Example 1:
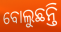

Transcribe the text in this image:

ବୋଲୁଛନ୍ତି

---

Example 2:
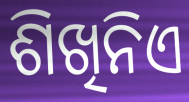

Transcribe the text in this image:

ଶିଖିନିଏ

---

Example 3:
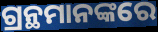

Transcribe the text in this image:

ଗ୍ରନ୍ଥମାନଙ୍କରେ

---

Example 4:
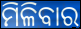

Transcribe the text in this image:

ମିଳିବାର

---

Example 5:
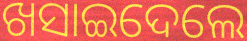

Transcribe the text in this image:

ଖସାଇଦେଲେ